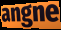
angne